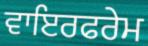
ਵਾਇਰਫਰੇਮ